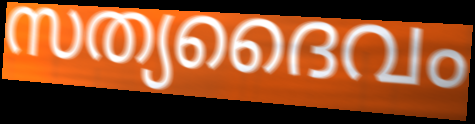
സത്യദൈവം